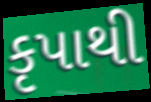
કૃપાથી